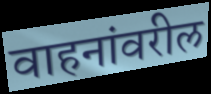
वाहनांवरील